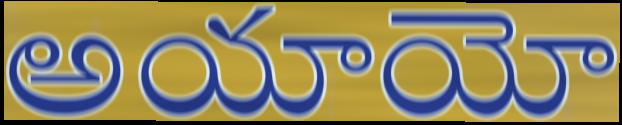
అయాయో